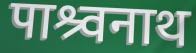
पाश्र्वनाथ